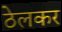
ठेलकर